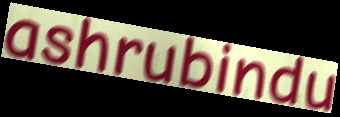
ashrubindu